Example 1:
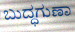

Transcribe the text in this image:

ಬುದ್ಧಗುಣಾ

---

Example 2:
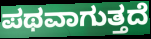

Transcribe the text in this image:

ಪಥವಾಗುತ್ತದೆ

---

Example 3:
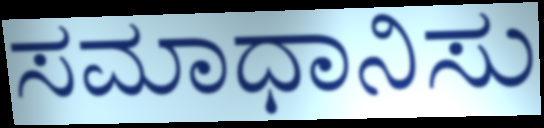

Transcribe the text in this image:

ಸಮಾಧಾನಿಸು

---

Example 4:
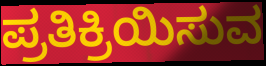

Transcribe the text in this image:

ಪ್ರತಿಕ್ರಿಯಿಸುವ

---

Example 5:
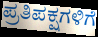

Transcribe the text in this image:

ಪ್ರತಿಪಕ್ಷಗಳಿಗೆ